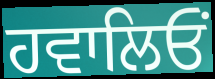
ਹਵਾਲਿਓਂ